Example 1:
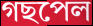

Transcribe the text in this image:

গছপেল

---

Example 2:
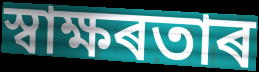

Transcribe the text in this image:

স্বাক্ষৰতাৰ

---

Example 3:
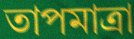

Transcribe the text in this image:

তাপমাত্ৰা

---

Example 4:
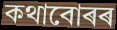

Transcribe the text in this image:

কথাবোৰৰ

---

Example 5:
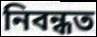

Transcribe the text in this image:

নিবন্ধত